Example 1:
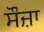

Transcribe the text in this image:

ਸੌਜ਼ਾ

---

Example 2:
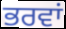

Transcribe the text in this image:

ਭਰਵਾਂ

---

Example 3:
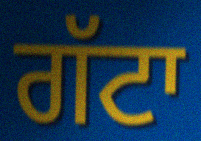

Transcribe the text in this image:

ਗੱਟਾ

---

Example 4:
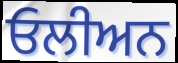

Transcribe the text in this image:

ਓਲੀਅਨ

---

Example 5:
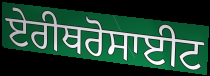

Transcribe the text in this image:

ਏਰੀਥਰੋਸਾਈਟ